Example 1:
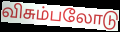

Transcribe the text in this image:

விசும்பலோடு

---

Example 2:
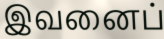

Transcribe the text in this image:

இவனைப்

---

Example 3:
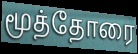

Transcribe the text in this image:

மூத்தோரை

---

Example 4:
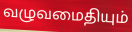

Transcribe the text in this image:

வழுவமைதியும்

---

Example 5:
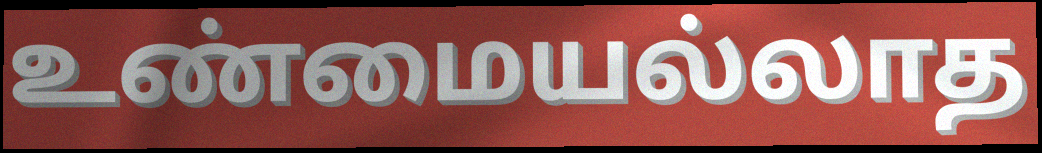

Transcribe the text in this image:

உண்மையல்லாத